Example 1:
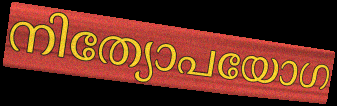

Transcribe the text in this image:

നിത്യോപയോഗ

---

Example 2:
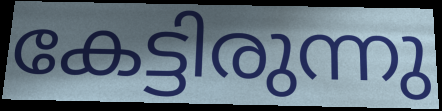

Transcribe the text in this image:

കേട്ടിരുന്നു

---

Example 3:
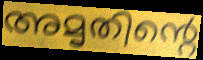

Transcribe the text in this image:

അമൃതിന്റെ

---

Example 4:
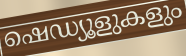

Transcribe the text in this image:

ഷെഡ്യൂളുകളും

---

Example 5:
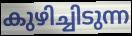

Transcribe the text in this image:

കുഴിച്ചിടുന്ന